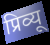
प्रिव्यू